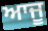
ਆਜੂ